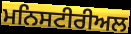
ਮਨਿਸਟੀਰੀਅਲ